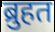
ब्रुहत